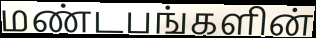
மண்டபங்களின்